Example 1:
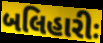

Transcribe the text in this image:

બલિહારીઃ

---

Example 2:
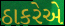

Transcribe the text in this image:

ઠાકરેએ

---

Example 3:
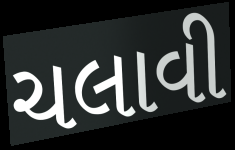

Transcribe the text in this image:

ચલાવી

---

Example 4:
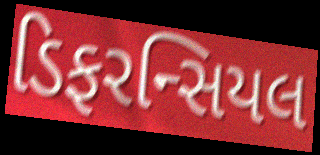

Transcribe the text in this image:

ડિફરન્સિયલ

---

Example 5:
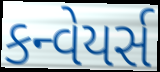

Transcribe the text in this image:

કન્વેયર્સ